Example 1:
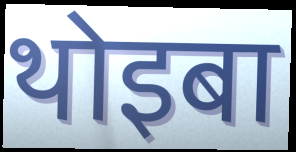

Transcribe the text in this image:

थोइबा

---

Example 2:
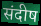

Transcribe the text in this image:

संदीष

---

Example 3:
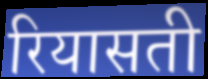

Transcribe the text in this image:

रियासती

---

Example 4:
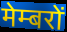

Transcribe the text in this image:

मेम्बरों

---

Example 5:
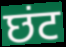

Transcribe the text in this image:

छंट